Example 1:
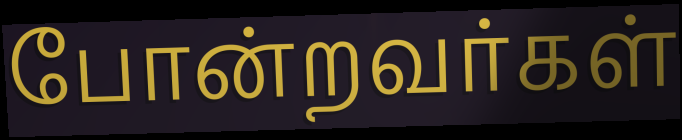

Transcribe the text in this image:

போன்றவர்கள்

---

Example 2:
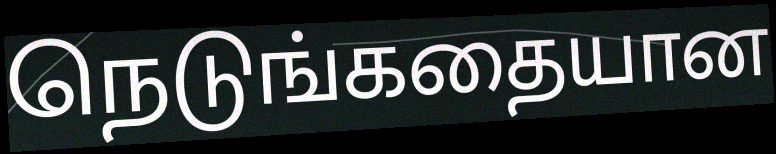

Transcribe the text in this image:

நெடுங்கதையான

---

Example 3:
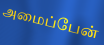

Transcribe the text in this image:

அமைப்பேன்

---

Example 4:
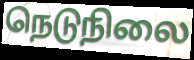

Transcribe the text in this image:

நெடுநிலை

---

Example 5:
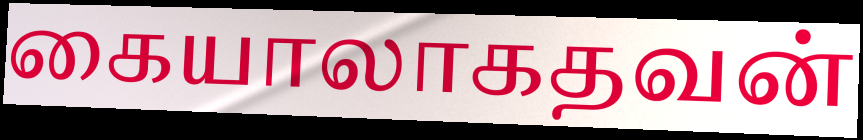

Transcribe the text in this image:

கையாலாகதவன்